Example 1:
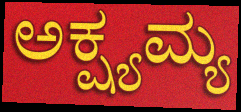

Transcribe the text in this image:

ಅಕ್ಷ್ಯಮ್ಯ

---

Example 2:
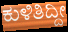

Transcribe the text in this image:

ಕುಳಿತಿದ್ದೀ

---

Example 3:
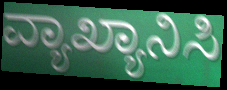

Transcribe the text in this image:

ವ್ಯಾಖ್ಯಾನಿಸಿ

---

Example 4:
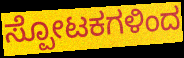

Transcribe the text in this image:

ಸ್ಪೋಟಕಗಳಿಂದ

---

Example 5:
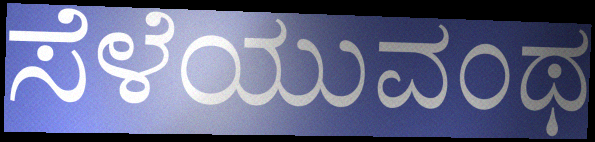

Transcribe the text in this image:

ಸೆಳೆಯುವಂಥ